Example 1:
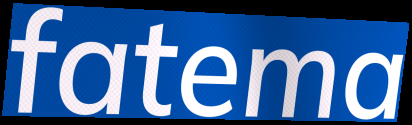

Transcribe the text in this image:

fatema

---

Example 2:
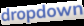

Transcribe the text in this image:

dropdown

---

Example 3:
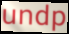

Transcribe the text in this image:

undp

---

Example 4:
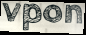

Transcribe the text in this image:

vpon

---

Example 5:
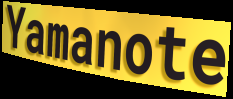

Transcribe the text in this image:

Yamanote